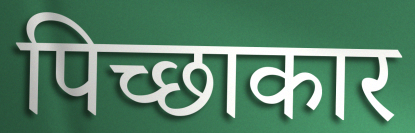
पिच्छाकार